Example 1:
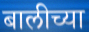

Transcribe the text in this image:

बालीच्या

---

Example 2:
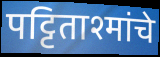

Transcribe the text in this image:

पट्टिताश्मांचे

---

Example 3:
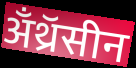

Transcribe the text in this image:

अँथ्रॅसीन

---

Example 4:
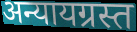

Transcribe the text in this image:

अन्यायग्रस्त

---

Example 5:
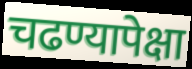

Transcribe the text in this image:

चढण्यापेक्षा